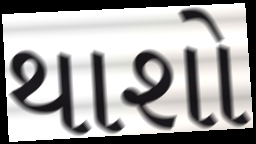
થાશો